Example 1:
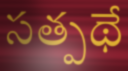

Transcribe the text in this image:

సత్పథే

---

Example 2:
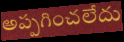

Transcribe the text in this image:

అప్పగించలేదు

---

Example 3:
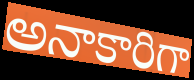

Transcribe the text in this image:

అనాకారిగా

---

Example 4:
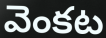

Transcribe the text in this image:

వెంకట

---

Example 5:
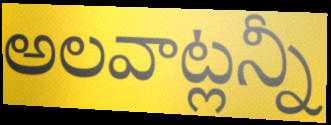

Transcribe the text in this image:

అలవాట్లన్నీ